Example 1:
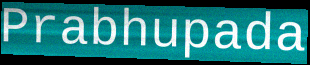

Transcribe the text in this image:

Prabhupada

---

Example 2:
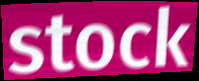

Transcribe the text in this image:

stock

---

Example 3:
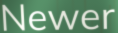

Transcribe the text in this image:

Newer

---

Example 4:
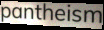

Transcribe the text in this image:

pantheism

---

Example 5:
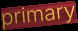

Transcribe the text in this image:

primary